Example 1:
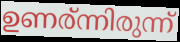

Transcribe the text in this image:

ഉണര്ന്നിരുന്ന്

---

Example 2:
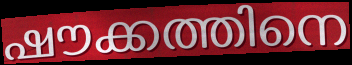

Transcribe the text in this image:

ഷൗക്കത്തിനെ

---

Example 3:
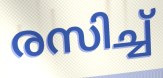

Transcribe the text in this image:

രസിച്ച്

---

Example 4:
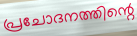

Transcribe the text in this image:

പ്രചോദനത്തിന്റെ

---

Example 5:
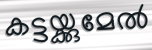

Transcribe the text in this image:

കട്ടയ്ക്കുമേൽ